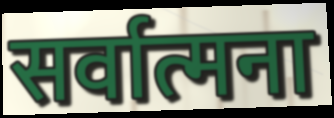
सर्वात्मना